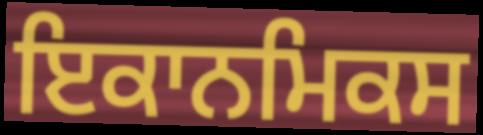
ਇਕਾਨਮਿਕਸ